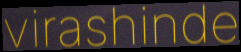
virashinde